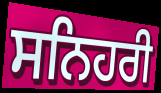
ਸਨਿਹਰੀ